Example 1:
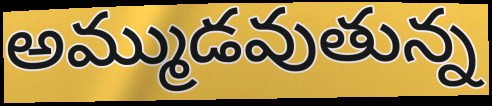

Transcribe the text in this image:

అమ్ముడవుతున్న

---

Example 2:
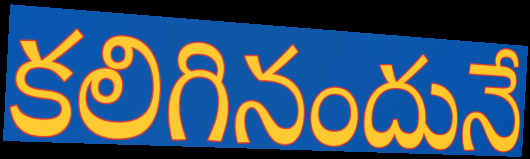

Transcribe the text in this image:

కలిగినందునే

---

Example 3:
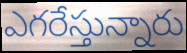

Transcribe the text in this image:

ఎగరేస్తున్నారు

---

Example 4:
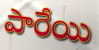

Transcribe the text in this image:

పారేయి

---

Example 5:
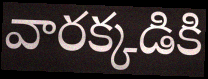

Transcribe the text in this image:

వారక్కడికి